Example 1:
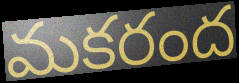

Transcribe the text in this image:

మకరంద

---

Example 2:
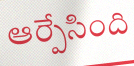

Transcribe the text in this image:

ఆర్పేసింది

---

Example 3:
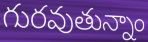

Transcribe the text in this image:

గురవుతున్నాం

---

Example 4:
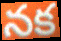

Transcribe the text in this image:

నక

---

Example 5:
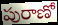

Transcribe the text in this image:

పురాణో